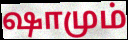
ஷாமும்